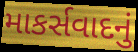
માકર્સવાદનું